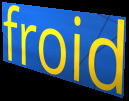
froid